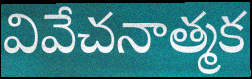
వివేచనాత్మక